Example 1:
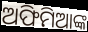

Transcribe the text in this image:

ଅଫିମିଆଙ୍କ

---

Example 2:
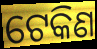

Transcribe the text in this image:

ଟେକିଣ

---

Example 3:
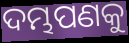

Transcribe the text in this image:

ଦମ୍ଭପଣକୁ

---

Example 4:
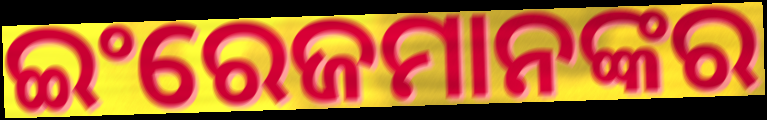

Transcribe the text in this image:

ଇଂରେଜମାନଙ୍କର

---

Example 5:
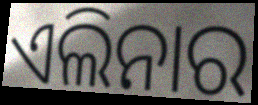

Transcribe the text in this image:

ଏଲିନାର